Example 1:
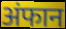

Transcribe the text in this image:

अंफान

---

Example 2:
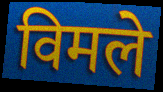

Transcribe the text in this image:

विमले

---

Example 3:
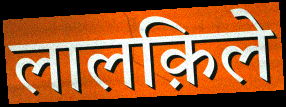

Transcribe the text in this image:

लालक़िले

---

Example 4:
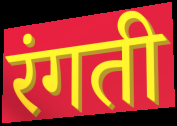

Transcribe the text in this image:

रंगती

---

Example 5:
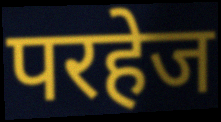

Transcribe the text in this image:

परहेज